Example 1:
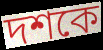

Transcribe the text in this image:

দশকে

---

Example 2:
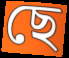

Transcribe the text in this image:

ছে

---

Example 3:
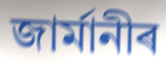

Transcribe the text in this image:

জাৰ্মানীৰ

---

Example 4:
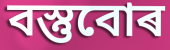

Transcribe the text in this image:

বস্তুবোৰ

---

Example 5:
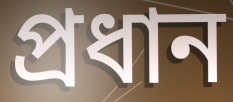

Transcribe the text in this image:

প্ৰধান